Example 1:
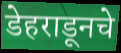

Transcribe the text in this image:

डेहराडूनचे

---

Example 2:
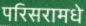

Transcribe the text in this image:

परिसरामधे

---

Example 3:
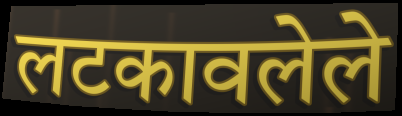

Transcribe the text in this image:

लटकावलेले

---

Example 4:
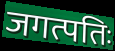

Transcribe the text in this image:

जगत्पतिः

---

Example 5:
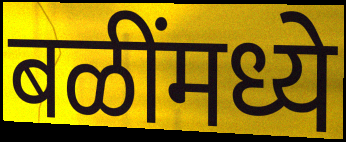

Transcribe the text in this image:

बळींमध्ये